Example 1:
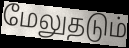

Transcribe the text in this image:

மேலுதடும்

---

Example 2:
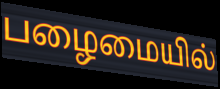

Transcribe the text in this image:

பழைமையில்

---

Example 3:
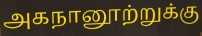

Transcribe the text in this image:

அகநானூற்றுக்கு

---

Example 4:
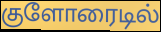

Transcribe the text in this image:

குளோரைடில்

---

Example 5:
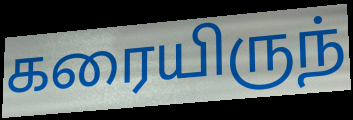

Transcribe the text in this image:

கரையிருந்